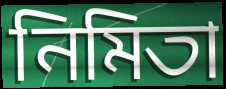
নিমিতা